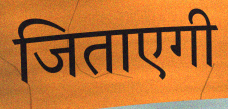
जिताएगी